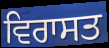
ਵਿਰਾਸਤ